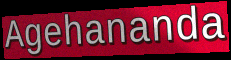
Agehananda